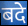
बदे